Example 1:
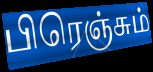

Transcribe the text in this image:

பிரெஞ்சும்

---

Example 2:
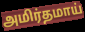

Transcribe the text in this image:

அமிர்தமாய்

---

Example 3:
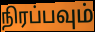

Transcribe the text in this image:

நிரப்பவும்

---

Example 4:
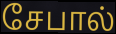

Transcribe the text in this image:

சேபால்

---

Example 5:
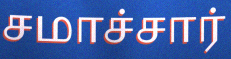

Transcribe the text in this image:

சமாச்சார்